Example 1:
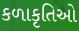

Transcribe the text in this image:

કળાકૃતિઓ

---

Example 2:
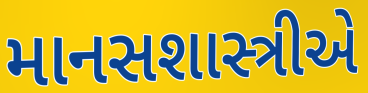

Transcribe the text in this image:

માનસશાસ્ત્રીએ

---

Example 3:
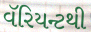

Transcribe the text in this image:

વૅરિયન્ટથી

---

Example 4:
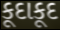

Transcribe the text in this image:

કૂદાકૂદ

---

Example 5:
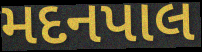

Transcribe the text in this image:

મદનપાલ